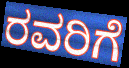
ರವರಿಗೆ